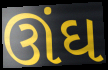
ઊંઘ